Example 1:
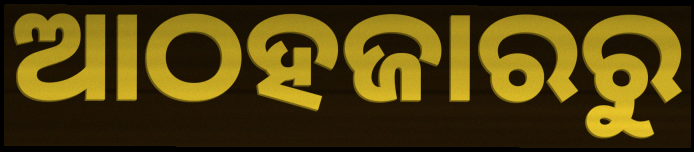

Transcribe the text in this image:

ଆଠହଜାରରୁ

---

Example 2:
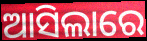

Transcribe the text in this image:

ଆସିଲାରେ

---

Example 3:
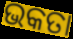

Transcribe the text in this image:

ଭକତା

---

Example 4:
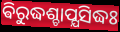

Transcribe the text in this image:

ଵିରୁଦ୍ଧଶ୍ଚାପ୍ଯସିଦ୍ଧଃ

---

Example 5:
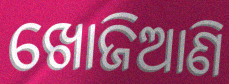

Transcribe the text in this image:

ଖୋଜିଆଣି